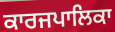
ਕਾਰਜਪਾਲਿਕਾ